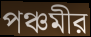
পঞ্চমীর